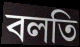
বলতি